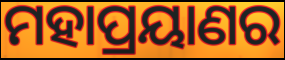
ମହାପ୍ରୟାଣର